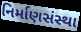
નિર્માણસંસ્થા